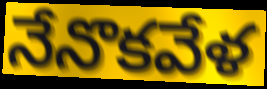
నేనొకవేళ